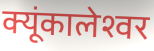
क्यूंकालेश्वर